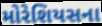
મોરેશિયસના